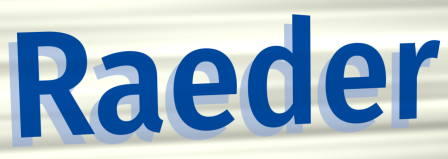
Raeder